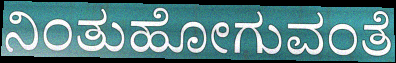
ನಿಂತುಹೋಗುವಂತೆ